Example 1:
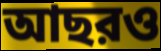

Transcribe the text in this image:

আছরও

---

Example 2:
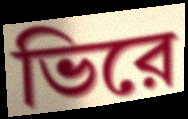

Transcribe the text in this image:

ভিরে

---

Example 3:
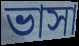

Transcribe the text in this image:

ভাসা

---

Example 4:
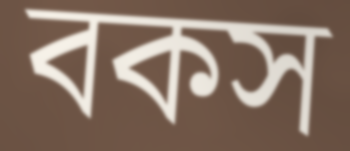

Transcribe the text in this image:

বকস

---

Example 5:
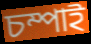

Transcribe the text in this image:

চম্পাই